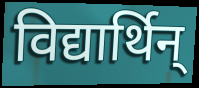
विद्यार्थिन्